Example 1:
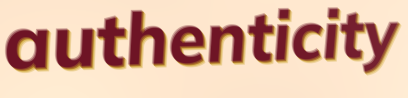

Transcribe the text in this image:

authenticity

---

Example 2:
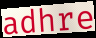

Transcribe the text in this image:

adhre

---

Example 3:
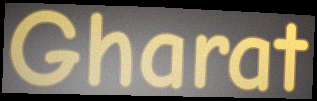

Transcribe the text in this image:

Gharat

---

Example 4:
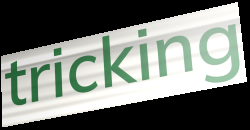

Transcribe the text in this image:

tricking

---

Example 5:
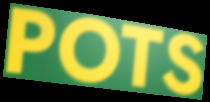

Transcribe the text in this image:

POTS